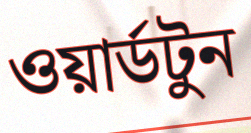
ওয়ার্ডটুন